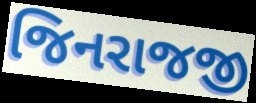
જિનરાજજી